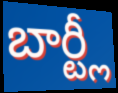
బార్ట్లీ